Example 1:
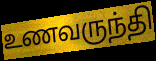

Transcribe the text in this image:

உணவருந்தி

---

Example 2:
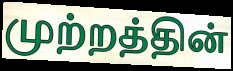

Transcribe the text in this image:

முற்றத்தின்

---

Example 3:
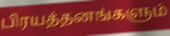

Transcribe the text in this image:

பிரயத்தனங்களும்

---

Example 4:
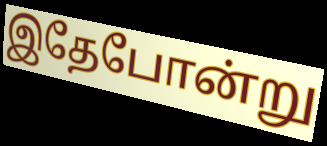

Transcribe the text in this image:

இதேபோன்று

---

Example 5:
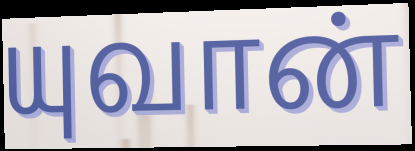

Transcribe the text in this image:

யுவான்